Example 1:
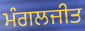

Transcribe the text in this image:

ਮੰਗਲਜੀਤ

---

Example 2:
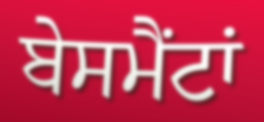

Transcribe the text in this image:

ਬੇਸਮੈਂਟਾਂ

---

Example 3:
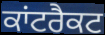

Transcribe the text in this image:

ਕਾਂਟਰੈਕਟ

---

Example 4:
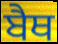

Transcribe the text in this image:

ਬੈਥ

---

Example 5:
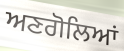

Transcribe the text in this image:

ਅਣਗੋਲਿਆਂ